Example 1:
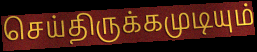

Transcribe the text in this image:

செய்திருக்கமுடியும்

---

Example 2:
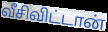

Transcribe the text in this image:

வீசிவிட்டான்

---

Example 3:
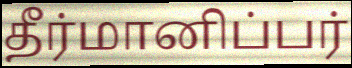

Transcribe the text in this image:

தீர்மானிப்பர்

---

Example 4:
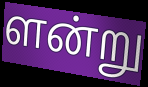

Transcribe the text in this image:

ளன்று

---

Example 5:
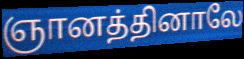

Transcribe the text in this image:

ஞானத்தினாலே